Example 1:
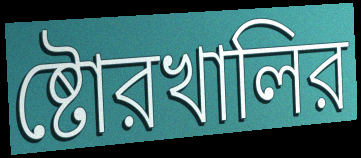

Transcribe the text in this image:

ষ্টোরখালির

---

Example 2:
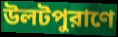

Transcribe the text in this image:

উলটপুরাণে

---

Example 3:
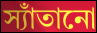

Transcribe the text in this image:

স্যাঁতানো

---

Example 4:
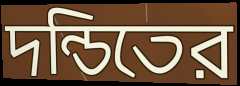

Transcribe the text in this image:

দন্ডিতের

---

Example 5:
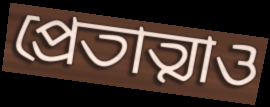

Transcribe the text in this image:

প্রেতাত্মাও